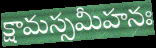
క్షామస్సమీహనః